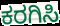
ಕರಗಿಸಿ